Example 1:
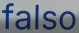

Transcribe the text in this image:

falso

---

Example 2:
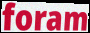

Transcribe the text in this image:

foram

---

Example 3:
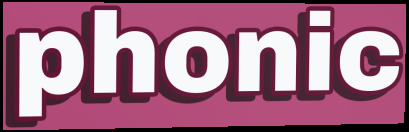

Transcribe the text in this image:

phonic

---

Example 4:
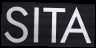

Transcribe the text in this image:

SITA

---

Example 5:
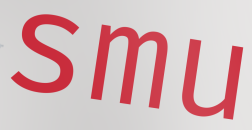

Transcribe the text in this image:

smu